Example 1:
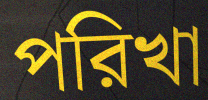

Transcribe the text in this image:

পরিখা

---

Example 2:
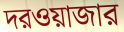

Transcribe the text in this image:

দরওয়াজার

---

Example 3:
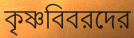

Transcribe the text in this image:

কৃষ্ণবিবরদের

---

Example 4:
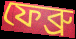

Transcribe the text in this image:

ফেব্রু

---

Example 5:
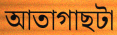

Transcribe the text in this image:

আতাগাছটা